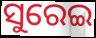
ସୁରେଇ